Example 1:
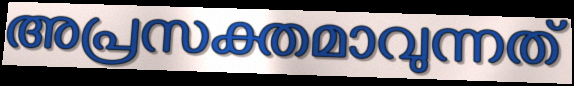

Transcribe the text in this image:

അപ്രസക്തമാവുന്നത്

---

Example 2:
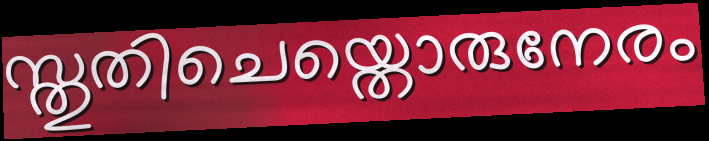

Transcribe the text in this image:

സ്തുതിചെയ്തൊരുനേരം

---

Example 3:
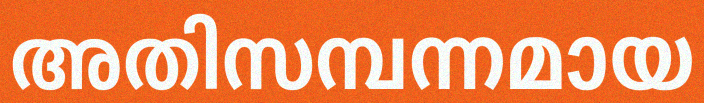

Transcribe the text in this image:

അതിസമ്പന്നമായ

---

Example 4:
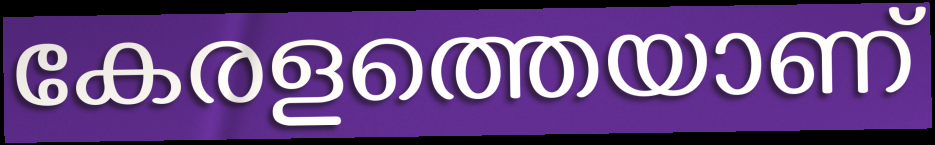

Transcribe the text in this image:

കേരളത്തെയാണ്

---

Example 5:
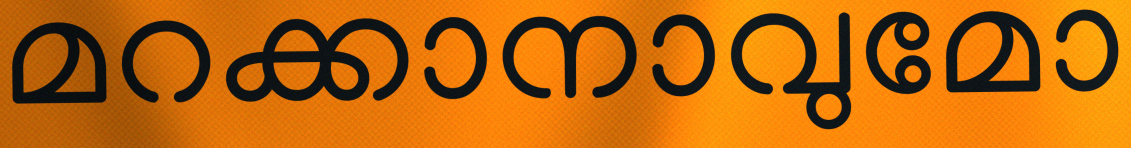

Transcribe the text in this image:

മറക്കാനാവുമോ